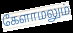
கேளாமலும்